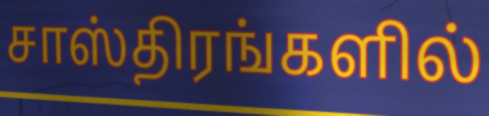
சாஸ்திரங்களில்